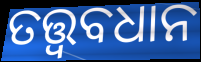
ତତ୍ତ୍ୱବଧାନ